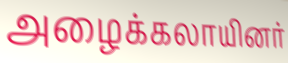
அழைக்கலாயினர்